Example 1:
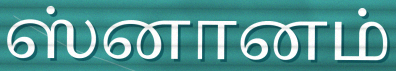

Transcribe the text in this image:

ஸ்னானம்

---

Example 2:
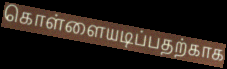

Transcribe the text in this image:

கொள்ளையடிப்பதற்காக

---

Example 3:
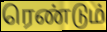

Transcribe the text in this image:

ரெண்டும்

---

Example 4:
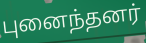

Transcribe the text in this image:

புனைந்தனர்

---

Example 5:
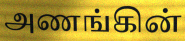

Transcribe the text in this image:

அணங்கின்